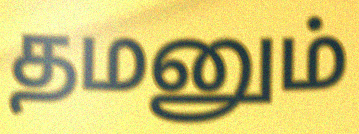
தமனும்